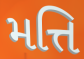
મત્તિ